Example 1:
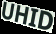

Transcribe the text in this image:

UHID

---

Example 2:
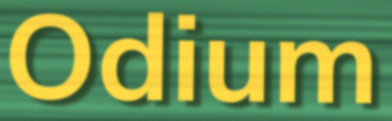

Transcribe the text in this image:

Odium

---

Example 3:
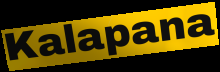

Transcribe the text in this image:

Kalapana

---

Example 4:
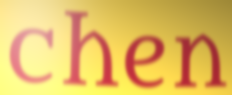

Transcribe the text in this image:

chen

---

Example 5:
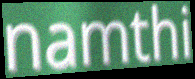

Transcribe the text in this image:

namthi